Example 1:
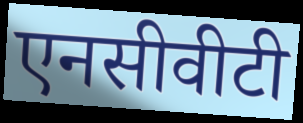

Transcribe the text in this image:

एनसीवीटी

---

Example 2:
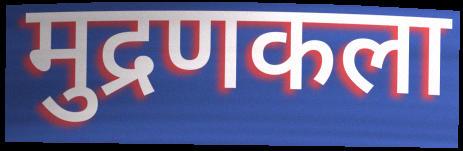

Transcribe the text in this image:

मुद्रणकला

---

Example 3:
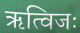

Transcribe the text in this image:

ऋत्विजः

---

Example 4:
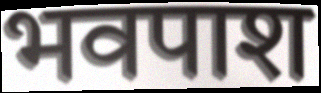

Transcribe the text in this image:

भवपाश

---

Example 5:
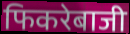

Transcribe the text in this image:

फिकरेबाजी